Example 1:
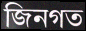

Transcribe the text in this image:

জিনগত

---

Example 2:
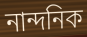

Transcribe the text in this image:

নান্দনিক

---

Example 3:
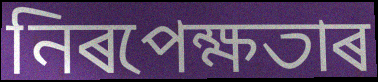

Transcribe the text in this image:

নিৰপেক্ষতাৰ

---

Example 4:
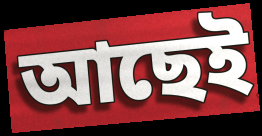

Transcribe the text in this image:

আছেই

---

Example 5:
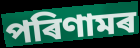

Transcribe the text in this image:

পৰিণামৰ